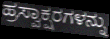
ಹ್ರಸ್ವಾಕ್ಷರಗಳನ್ನು